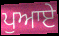
ਪੁਆਏ